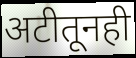
अटीतूनही